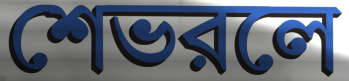
শেভরলে